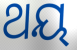
ଥୟ